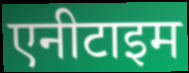
एनीटाइम